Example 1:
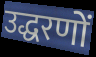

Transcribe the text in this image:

उद्धरणों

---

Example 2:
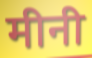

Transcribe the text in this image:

मीनी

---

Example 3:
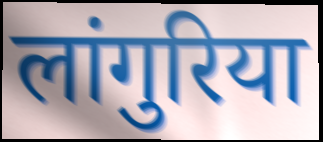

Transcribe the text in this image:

लांगुरिया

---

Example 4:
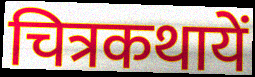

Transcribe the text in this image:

चित्रकथायें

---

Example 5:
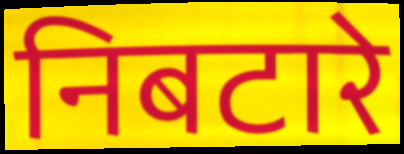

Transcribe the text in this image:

निबटारे